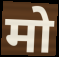
मो